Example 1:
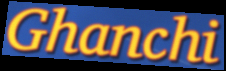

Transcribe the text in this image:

Ghanchi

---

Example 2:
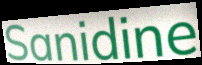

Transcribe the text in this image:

Sanidine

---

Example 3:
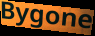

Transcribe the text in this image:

Bygone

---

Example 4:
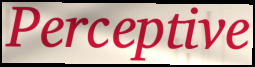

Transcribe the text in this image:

Perceptive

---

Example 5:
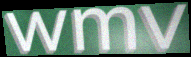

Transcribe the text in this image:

wmv